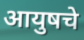
आयुषचे